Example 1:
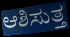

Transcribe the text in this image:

ಆಶಿಸುತ್ತ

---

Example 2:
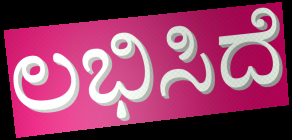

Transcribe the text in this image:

ಲಭಿಸಿದೆ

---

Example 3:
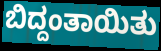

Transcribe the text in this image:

ಬಿದ್ದಂತಾಯಿತು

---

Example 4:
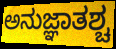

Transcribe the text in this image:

ಅನುಜ್ಞಾತಶ್ಚ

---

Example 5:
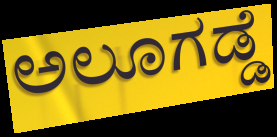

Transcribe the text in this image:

ಅಲೂಗಡ್ಡೆ